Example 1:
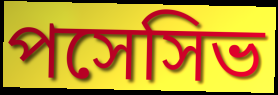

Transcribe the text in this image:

পসেসিভ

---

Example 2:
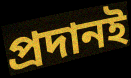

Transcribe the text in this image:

প্রদানই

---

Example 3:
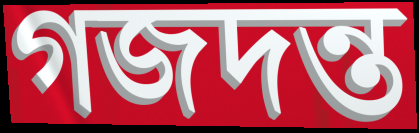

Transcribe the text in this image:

গজদন্ত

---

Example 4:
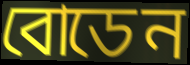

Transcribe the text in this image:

বোডেন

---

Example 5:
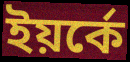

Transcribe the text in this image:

ইয়র্কে